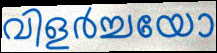
വിളർച്ചയോ